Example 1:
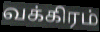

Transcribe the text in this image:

வக்கிரம்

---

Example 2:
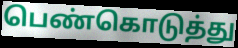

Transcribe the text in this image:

பெண்கொடுத்து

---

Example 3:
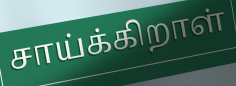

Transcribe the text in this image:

சாய்க்கிறாள்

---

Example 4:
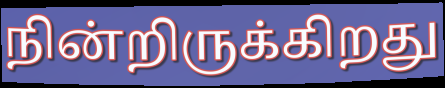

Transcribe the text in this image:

நின்றிருக்கிறது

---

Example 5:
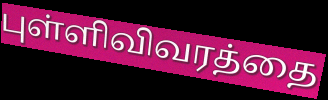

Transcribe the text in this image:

புள்ளிவிவரத்தை